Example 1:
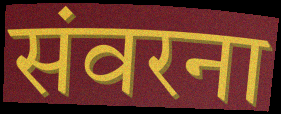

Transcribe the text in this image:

संवरना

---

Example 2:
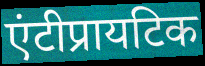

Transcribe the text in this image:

एंटीप्रायटिक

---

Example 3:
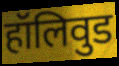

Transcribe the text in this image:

हॉलिवुड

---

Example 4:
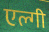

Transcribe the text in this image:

एल्गी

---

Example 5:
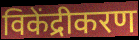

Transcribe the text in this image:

विकेंद्रीकरण